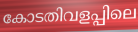
കോടതിവളപ്പിലെ